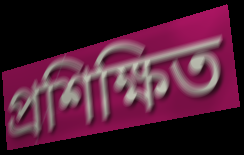
প্ৰশিক্ষিত